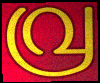
വ്ര